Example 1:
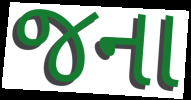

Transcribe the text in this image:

જના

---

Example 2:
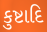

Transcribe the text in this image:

કુષ્ટાદિ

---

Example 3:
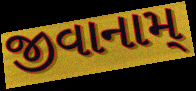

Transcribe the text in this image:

જીવાનામ્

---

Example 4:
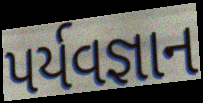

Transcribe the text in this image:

પર્યવજ્ઞાન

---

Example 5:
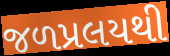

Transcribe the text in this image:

જળપ્રલયથી